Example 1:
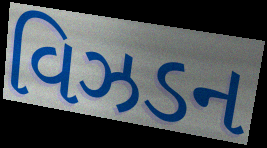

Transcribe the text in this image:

વિઝડન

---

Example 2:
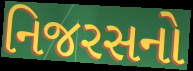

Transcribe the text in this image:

નિજરસનો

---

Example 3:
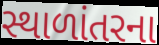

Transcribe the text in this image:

સ્થાળાંતરના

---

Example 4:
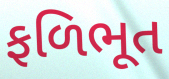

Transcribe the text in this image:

ફળિભૂત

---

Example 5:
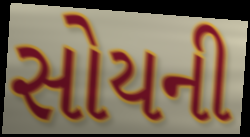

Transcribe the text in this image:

સોયની